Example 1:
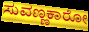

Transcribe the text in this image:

ಸುವಣ್ಣಕಾರೋ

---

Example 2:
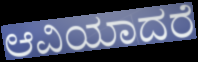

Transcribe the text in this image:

ಆವಿಯಾದರೆ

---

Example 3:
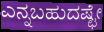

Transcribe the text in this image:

ಎನ್ನಬಹುದಷ್ಟೇ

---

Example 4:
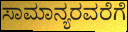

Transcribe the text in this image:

ಸಾಮಾನ್ಯರವರೆಗೆ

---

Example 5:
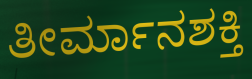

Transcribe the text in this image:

ತೀರ್ಮಾನಶಕ್ತಿ